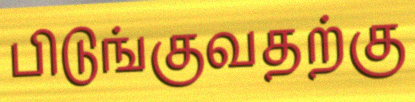
பிடுங்குவதற்கு